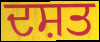
ਦਸ਼ਤ